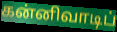
கன்னிவாடிப்